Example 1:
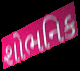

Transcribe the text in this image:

શોભનિક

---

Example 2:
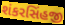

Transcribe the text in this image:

શંકરસિંહજી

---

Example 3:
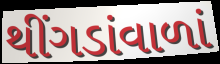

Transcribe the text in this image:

થીંગડાંવાળાં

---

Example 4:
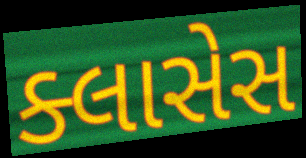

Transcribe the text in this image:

ક્લાસેસ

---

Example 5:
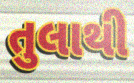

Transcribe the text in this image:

તુલાથી